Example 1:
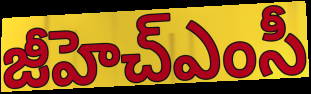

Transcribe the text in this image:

జీహెచ్ఎంసీ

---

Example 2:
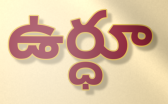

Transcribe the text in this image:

ఉర్ధూ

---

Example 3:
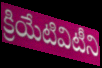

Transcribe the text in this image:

క్రియేటివిటీని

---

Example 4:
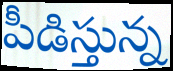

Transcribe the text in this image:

పీడిస్తున్న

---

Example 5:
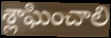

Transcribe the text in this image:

శ్లాఘించాలి